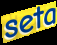
seta